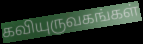
கவியுருவகங்கள்